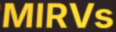
MIRVs